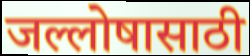
जल्लोषासाठी